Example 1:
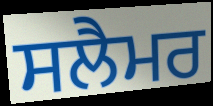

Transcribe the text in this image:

ਸਲੈਮਰ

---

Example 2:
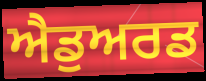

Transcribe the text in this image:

ਐਡੁਅਰਡ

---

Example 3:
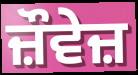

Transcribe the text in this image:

ਜ਼ੌਵੇਜ਼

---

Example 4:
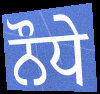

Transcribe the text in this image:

ਨੌਧੇ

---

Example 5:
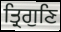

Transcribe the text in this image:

ਤ੍ਰਿਗੁਣਿ